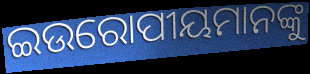
ଇଉରୋପୀୟମାନଙ୍କୁ